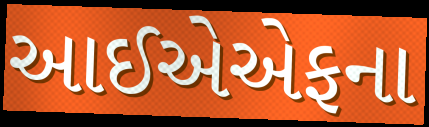
આઈએએફના